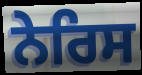
ਨੇਰਿਸ